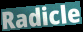
Radicle